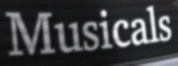
Musicals